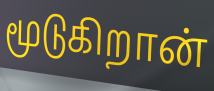
மூடுகிறான்